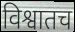
विश्वातच